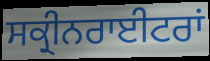
ਸਕ੍ਰੀਨਰਾਈਟਰਾਂ